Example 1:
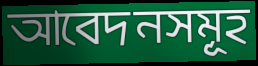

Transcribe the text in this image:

আবেদনসমূহ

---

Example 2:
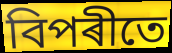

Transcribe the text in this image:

বিপৰীতে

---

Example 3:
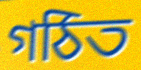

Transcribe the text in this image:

গঠিত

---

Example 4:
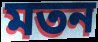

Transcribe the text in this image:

মতন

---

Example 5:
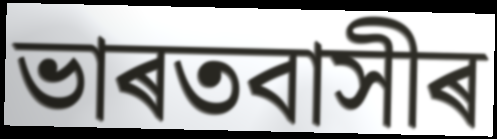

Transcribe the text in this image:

ভাৰতবাসীৰ